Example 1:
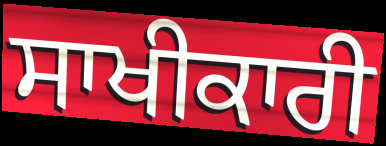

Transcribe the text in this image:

ਸਾਖੀਕਾਰੀ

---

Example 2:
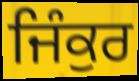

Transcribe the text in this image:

ਜਿੰਕੁਰ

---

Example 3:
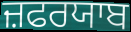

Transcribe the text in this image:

ਜ਼ਫਰਯਾਬ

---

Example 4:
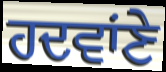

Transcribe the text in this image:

ਹਦਵਾਂਣੇ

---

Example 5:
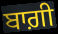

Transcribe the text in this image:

ਬਾਗ਼ੀ